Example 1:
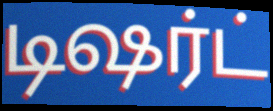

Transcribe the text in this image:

டிஷர்ட்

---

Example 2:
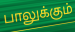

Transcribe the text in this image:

பாலுக்கும்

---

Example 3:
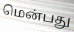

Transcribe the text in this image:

மென்பது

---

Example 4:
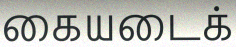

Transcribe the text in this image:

கையடைக்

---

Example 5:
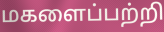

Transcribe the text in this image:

மகளைப்பற்றி